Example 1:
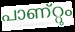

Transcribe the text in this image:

പാണ്റ്റും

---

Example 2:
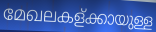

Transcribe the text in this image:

മേഖലകള്ക്കായുള്ള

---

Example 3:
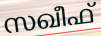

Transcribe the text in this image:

സഖീഫ്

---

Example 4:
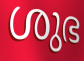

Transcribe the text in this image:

ശുഭ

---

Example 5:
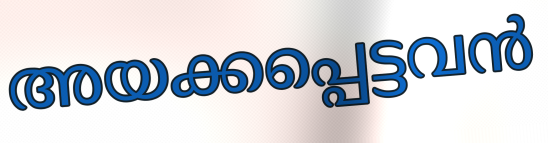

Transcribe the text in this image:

അയക്കപ്പെട്ടവൻ